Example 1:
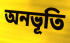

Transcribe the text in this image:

অনভূতি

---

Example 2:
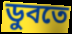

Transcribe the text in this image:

ডুবতে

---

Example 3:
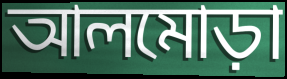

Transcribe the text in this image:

আলমোড়া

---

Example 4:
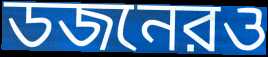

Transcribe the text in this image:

ডজনেরও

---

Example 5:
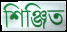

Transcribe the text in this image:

শিঞ্জিত